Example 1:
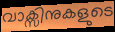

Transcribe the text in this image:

വാക്സിനുകളുടെ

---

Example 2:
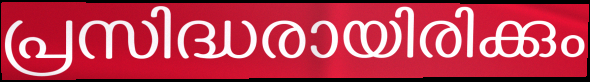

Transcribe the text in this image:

പ്രസിദ്ധരായിരിക്കും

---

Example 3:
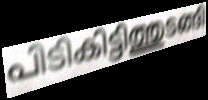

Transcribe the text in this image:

പിടികിട്ടിത്തുടങ്ങി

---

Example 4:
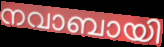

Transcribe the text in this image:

നവാബായി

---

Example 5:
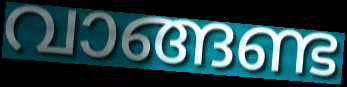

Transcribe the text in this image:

വാങ്ങണ്ട